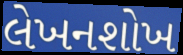
લેખનશોખ